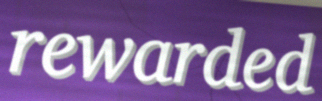
rewarded